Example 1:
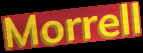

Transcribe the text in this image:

Morrell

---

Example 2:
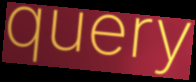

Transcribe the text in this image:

query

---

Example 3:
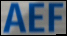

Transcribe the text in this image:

AEF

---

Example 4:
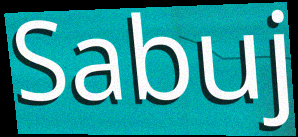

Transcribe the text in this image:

Sabuj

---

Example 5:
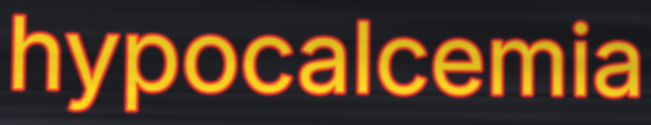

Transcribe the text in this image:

hypocalcemia